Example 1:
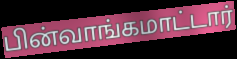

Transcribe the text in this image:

பின்வாங்கமாட்டார்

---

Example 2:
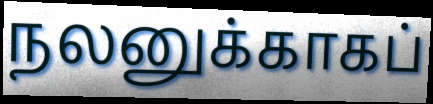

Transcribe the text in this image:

நலனுக்காகப்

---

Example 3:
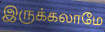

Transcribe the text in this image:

இருக்கலாமே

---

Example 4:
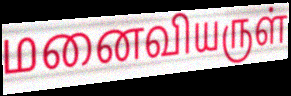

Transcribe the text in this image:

மனைவியருள்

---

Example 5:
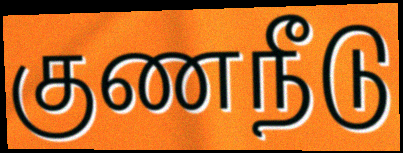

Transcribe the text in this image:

குணநீடு